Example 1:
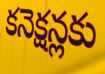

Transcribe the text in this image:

కనెక్షన్లకు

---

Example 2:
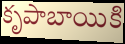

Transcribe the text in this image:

కృపాబాయికి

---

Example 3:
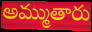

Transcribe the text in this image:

అమ్ముతారు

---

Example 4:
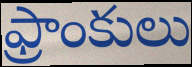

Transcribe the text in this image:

ఫ్రాంకులు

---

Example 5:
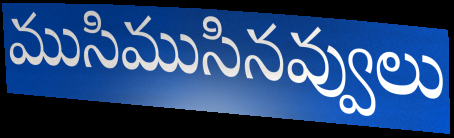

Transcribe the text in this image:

ముసిముసినవ్వులు